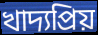
খাদ্যপ্রিয়